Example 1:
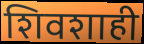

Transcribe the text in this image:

शिवशाही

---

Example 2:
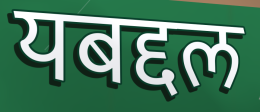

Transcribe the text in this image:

यबद्दल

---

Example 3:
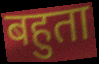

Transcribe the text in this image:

बहुता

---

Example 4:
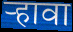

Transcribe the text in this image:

ऱ्हावा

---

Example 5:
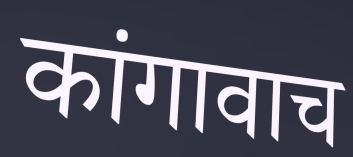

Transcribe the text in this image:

कांगावाच